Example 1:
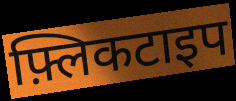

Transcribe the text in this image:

फ़्लिकटाइप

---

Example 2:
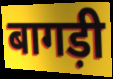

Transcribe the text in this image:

बागड़ी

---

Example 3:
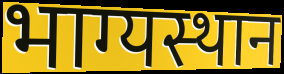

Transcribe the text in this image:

भाग्यस्थान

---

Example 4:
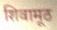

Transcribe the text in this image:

शिवामूठ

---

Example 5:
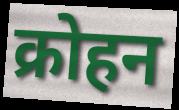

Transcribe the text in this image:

क्रोहन